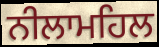
ਨੀਲਾਮਹਿਲ